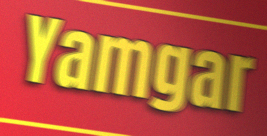
Yamgar